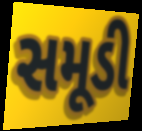
સમૂડી